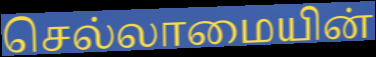
செல்லாமையின்